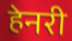
हेनरी